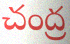
చంద్ర